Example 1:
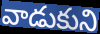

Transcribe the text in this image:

వాడుకుని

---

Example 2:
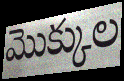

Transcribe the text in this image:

మొక్కుల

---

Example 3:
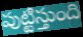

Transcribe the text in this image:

పుట్టిస్తుంది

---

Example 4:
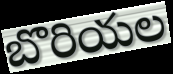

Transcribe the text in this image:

బొరియల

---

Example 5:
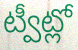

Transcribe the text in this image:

ట్వీట్లో